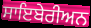
ਸਾਇਬੇਰੀਅਨ